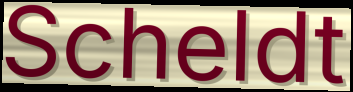
Scheldt